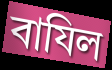
বাযিল